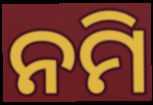
ନମି